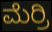
ಮೆರ್ರಿ